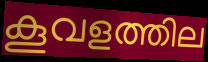
കൂവളത്തില